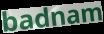
badnam